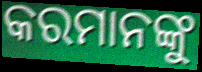
କରମାନଙ୍କୁ